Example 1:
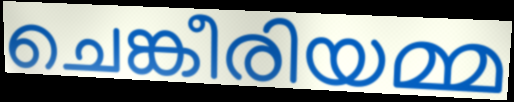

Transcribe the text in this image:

ചെങ്കീരിയമ്മ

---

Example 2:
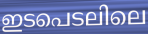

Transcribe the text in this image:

ഇടപെടലിലെ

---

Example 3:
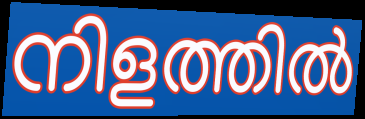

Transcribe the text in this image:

നിളത്തിൽ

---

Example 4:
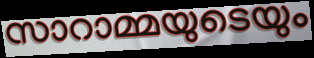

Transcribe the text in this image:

സാറാമ്മയുടെയും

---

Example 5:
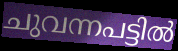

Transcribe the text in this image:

ചുവന്നപട്ടിൽ